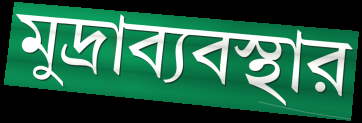
মুদ্রাব্যবস্থার